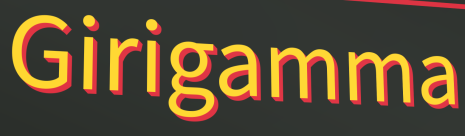
Girigamma